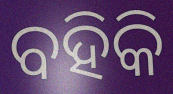
ବହିକି